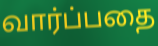
வார்ப்பதை